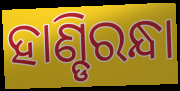
ହାଣ୍ଡିରନ୍ଧା